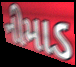
નીમાડ